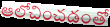
ఆలోచించడంతో